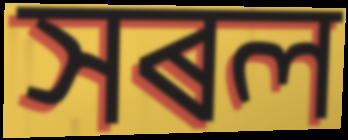
সৰল